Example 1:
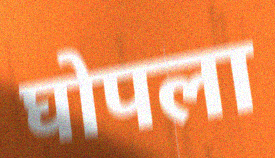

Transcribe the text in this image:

घोपला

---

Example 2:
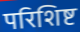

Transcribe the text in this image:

परिशिष्ट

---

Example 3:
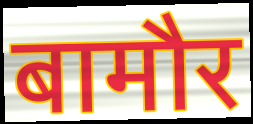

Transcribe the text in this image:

बामौर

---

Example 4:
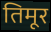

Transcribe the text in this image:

तिमूर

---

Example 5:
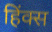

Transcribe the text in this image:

हिंक्स